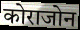
कोराजोन